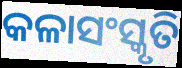
କଳାସଂସ୍କୃତି